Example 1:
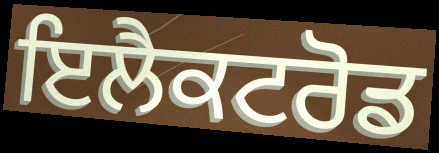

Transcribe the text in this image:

ਇਲੈਕਟਰੋਡ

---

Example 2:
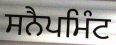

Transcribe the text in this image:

ਸਨੈਪਮਿੰਟ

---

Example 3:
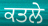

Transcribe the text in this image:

ਕਤਲੇ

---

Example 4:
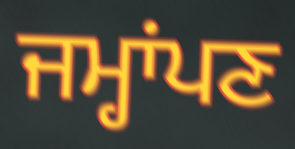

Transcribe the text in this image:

ਜਮ੍ਹਾਂਪਣ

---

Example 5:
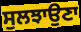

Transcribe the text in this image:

ਸੁਲਝਾਉਣਾ